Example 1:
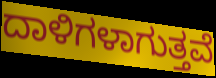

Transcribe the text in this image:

ದಾಳಿಗಳಾಗುತ್ತವೆ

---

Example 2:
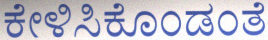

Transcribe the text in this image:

ಕೇಳಿಸಿಕೊಂಡಂತೆ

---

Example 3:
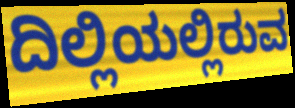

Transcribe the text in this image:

ದಿಲ್ಲಿಯಲ್ಲಿರುವ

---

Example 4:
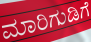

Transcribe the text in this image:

ಮಾರಿಗುಡಿಗೆ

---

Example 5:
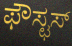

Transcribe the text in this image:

ಫೌಸ್ಟಸ್